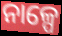
ନାଳ୍ପେ